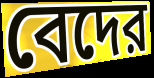
বেদের